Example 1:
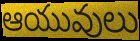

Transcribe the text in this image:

ఆయువులు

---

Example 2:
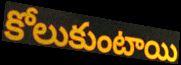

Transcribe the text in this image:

కోలుకుంటాయి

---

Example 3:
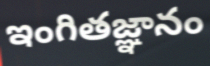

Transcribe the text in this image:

ఇంగితజ్ఞానం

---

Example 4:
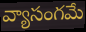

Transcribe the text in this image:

వ్యాసంగమే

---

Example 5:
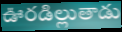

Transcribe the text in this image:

ఊరడిల్లుతాడు